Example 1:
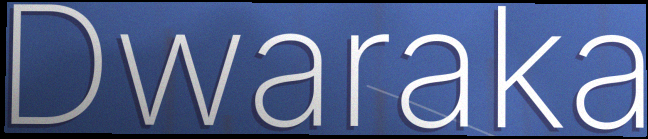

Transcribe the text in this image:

Dwaraka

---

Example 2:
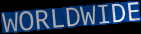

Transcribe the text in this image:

WORLDWIDE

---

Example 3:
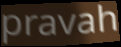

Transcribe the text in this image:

pravah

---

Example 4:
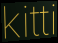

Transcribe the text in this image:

kitti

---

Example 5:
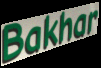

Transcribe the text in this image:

Bakhar